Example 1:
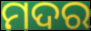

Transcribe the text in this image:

ମଦର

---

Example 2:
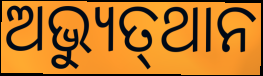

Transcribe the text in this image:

ଅଭ୍ୟୁତ୍‌ଥାନ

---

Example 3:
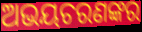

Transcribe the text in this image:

ଅଭୟଚରଣଙ୍କର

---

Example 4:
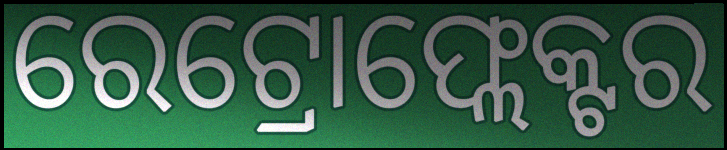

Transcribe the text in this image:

ରେଟ୍ରୋଫ୍ଲେକ୍ଟର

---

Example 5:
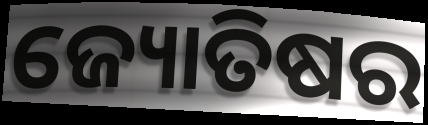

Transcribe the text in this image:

ଜ୍ୟୋତିଷର